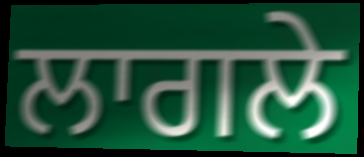
ਲਾਗਲੇ